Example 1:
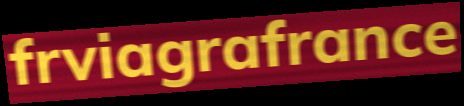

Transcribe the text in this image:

frviagrafrance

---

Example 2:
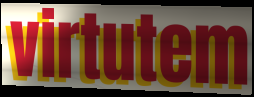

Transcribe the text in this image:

virtutem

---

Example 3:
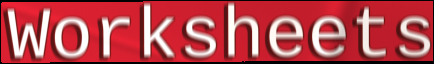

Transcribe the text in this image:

Worksheets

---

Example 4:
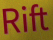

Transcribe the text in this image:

Rift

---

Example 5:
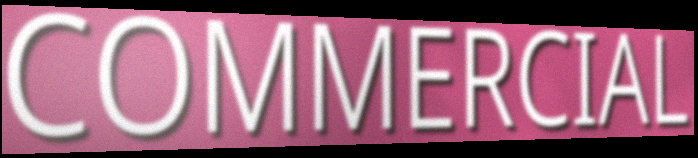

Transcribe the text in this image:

COMMERCIAL